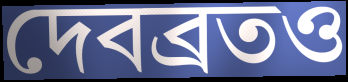
দেবব্রতও